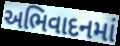
અભિવાદનમાં